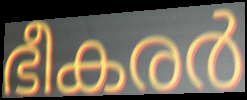
ഭീകരർ